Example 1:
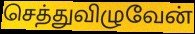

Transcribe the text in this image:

செத்துவிழுவேன்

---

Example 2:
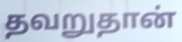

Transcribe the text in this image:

தவறுதான்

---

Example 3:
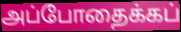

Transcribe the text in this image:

அப்போதைக்கப்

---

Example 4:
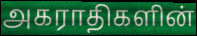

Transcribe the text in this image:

அகராதிகளின்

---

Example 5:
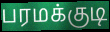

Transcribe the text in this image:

பரமக்குடி